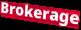
Brokerage